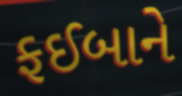
ફઈબાને